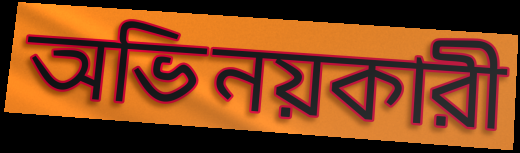
অভিনয়কারী